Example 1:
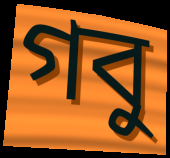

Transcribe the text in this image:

গবু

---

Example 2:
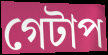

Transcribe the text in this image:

গেটাপ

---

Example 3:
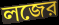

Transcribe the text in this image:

লজের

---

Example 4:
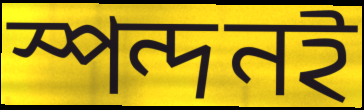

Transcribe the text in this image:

স্পন্দনই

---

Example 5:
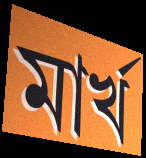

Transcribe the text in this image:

মার্খ